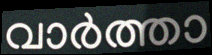
വാർത്താ